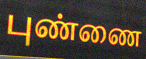
புண்ணை